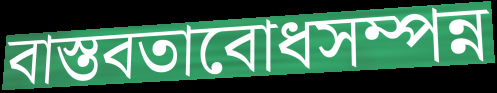
বাস্তবতাবোধসম্পন্ন